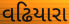
વઢિયારા